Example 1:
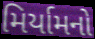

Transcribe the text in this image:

મિર્યામનો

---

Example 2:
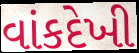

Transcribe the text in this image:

વાંકદેખી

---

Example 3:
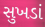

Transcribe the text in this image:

સુખડાં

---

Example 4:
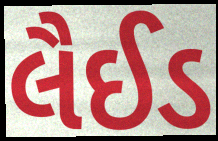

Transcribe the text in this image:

લૈઈડ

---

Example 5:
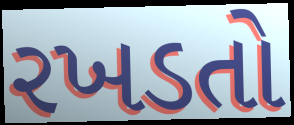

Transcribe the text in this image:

રખડતો